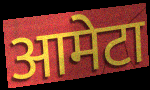
आमेटा